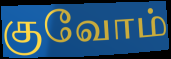
குவோம்